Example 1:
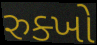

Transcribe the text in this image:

રુક્ખો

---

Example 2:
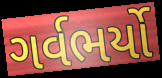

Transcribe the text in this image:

ગર્વભર્યો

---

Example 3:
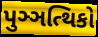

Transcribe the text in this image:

પુઞ્ઞત્થિકો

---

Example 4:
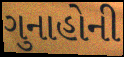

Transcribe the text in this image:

ગુનાહોની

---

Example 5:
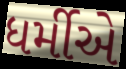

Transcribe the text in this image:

ધર્મીએ